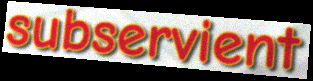
subservient